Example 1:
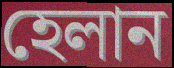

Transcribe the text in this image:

হেলান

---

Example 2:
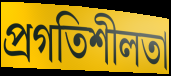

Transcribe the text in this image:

প্রগতিশীলতা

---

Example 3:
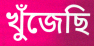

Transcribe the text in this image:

খুঁজেছি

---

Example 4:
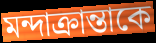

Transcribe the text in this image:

মন্দাক্রান্তাকে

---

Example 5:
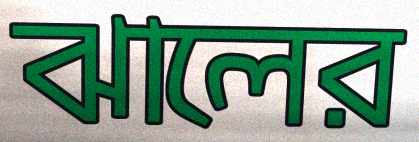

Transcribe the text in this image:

ঝালের